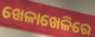
ଖେଳାଖେଳିରେ